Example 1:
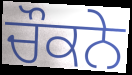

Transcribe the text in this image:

ਚੌਕਨੇ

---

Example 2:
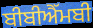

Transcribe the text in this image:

ਬੀਬੀਐੱਮਬੀ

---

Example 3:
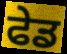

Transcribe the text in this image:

ਫੇਡ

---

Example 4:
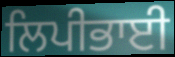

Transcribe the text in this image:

ਲਿਪੀਭਾਈ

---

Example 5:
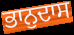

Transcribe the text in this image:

ਭਾਨੁਦਾਸ